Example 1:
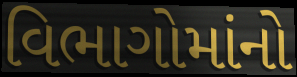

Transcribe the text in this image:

વિભાગોમાંનો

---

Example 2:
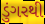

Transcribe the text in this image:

ડુંગરથી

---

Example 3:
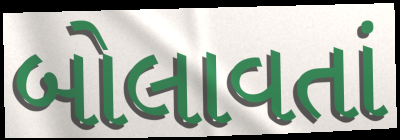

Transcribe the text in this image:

બોલાવતાં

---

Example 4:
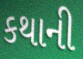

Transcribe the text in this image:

કથાની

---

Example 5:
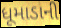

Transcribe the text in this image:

ધૂમાડાની